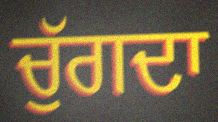
ਚੁੱਗਦਾ